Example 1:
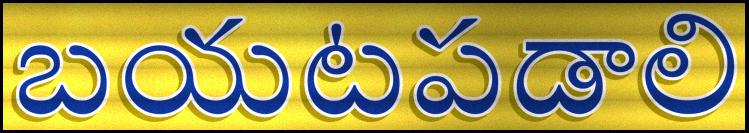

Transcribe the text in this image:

బయటపడాలి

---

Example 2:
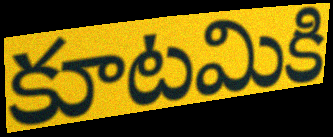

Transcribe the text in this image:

కూటమికి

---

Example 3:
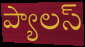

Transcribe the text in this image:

ప్యాలస్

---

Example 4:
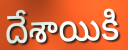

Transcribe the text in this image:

దేశాయికి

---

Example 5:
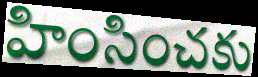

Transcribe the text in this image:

హింసించకు